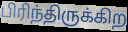
பிரிந்திருக்கிற